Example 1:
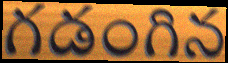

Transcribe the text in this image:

గడంగిన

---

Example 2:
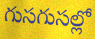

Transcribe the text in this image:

గుసగుసల్లో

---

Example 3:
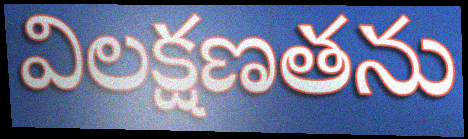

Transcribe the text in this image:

విలక్షణతను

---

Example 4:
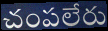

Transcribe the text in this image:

చంపలేరు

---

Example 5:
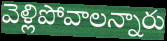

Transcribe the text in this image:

వెళ్లిపోవాలన్నారు